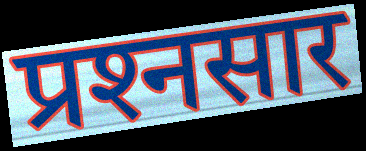
प्रश्‍नसार